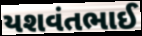
યશવંતભાઈ